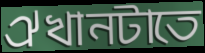
ঐখানটাতে